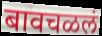
बावचळलं